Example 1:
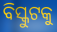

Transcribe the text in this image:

ବିସ୍କୁଟକୁ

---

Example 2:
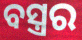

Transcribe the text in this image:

ବସ୍ତ୍ରର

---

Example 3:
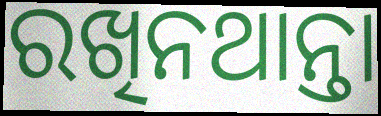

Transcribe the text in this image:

ରଖିନଥାନ୍ତା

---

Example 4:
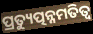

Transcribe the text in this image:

ପ୍ରତ୍ୟୁତ୍ପନ୍ନମତିତ୍ୱ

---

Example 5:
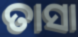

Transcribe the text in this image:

ତାସା